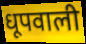
धूपवाली